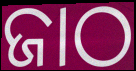
ଜାଠ